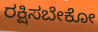
ರಕ್ಷಿಸಬೇಕೋ